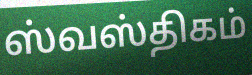
ஸ்வஸ்திகம்